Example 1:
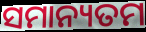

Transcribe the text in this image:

ସମାନ୍ୟତମ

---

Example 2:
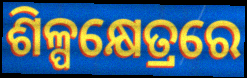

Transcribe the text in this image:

ଶିଳ୍ପକ୍ଷେତ୍ରରେ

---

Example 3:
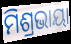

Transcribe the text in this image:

ମିଶ୍ରଭାୟା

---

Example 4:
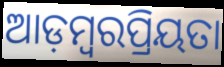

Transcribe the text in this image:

ଆଡ଼ମ୍ବରପ୍ରିୟତା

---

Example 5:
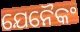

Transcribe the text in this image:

ଯେନୈକଂ